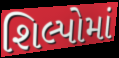
શિલ્પોમાં